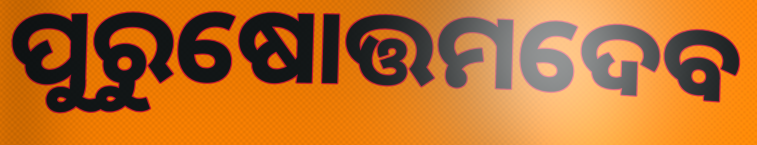
ପୁରୁଷୋତ୍ତମଦେବ